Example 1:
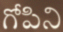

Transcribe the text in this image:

గోపిని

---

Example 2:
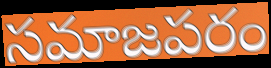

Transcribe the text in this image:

సమాజపరం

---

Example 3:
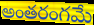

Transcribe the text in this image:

అంతరంగమే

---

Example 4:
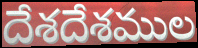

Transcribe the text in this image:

దేశదేశముల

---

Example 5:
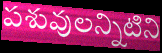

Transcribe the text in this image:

పశువులన్నిటిని